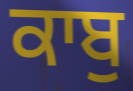
ਕਾਬੁ